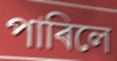
পাৰিলে